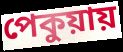
পেকুয়ায়